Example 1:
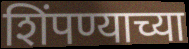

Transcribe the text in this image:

शिंपण्याच्या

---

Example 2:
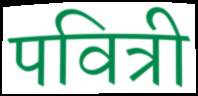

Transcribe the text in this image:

पवित्री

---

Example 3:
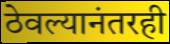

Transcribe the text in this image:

ठेवल्यानंतरही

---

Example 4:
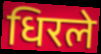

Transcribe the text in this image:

धिरले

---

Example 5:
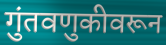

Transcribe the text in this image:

गुंतवणुकीवरून